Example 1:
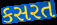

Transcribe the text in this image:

કસરત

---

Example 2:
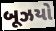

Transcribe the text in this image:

બૂઝયો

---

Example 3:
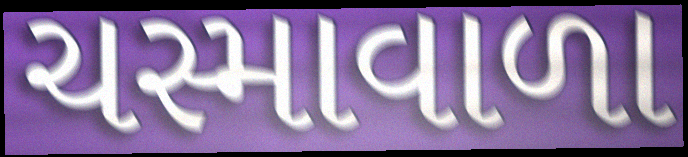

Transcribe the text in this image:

ચસ્માવાળા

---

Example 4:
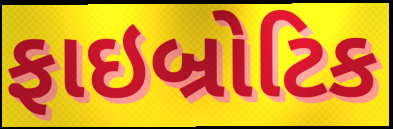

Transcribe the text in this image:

ફાઇબ્રોટિક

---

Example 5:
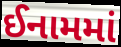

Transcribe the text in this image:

ઈનામમાં